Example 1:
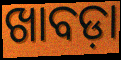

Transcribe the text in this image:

ଖାବଡ଼ା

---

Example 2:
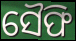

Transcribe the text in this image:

ସୈଫି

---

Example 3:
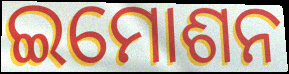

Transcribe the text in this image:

ଇମୋଶନ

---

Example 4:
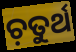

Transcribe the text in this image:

ଚ଼ତୁର୍ଥ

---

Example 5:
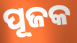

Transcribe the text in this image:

ପୂଜକ